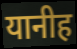
यानीह